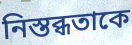
নিস্তব্ধতাকে